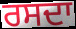
ਰਸਦਾ